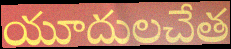
యూదులచేత